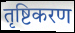
तृष्टिकरण